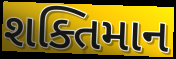
શક્તિમાન